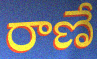
రాణే